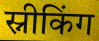
स्नीकिंग